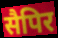
सैपिर